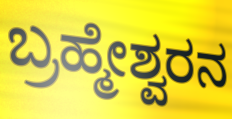
ಬ್ರಹ್ಮೇಶ್ವರನ